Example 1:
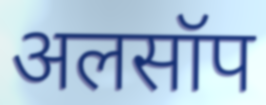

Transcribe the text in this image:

अलसॉप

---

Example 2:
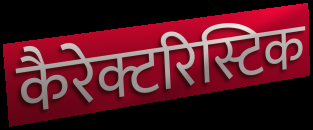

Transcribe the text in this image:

कैरेक्टरिस्टिक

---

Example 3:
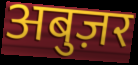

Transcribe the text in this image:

अबुज़र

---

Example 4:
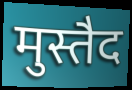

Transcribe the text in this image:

मुस्‍तैद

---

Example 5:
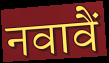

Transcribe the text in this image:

नवावैं